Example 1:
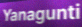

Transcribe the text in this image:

Yanagunti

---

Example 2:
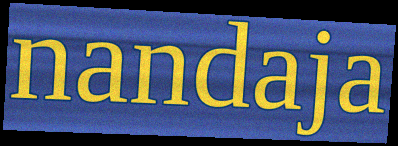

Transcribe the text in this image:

nandaja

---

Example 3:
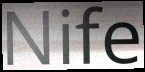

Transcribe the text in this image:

Nife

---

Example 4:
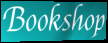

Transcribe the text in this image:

Bookshop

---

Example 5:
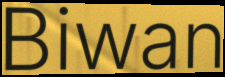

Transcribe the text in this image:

Biwan